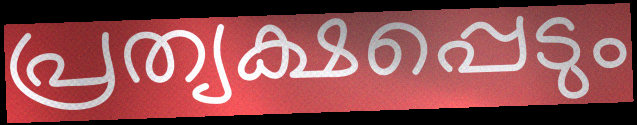
പ്രത്യക്ഷപ്പെടും